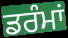
ਡਰੰਮਾਂ